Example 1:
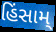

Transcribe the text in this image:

હિંસામ્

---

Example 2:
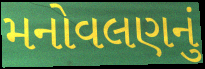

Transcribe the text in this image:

મનોવલણનું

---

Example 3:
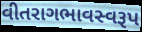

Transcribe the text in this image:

વીતરાગભાવસ્વરૂપ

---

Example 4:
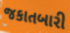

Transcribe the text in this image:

જકાતબારી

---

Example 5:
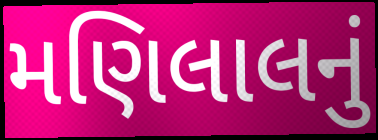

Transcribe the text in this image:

મણિલાલનું